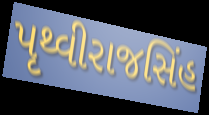
પૃથ્વીરાજસિંહ